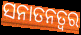
ସନାତନତ୍ୱର